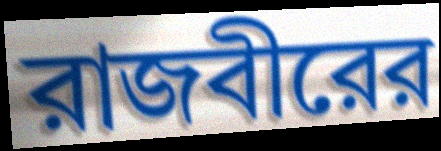
রাজবীরের